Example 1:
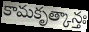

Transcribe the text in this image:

కామకృత్కాన్తః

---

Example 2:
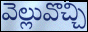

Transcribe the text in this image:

వెల్లువొచ్చి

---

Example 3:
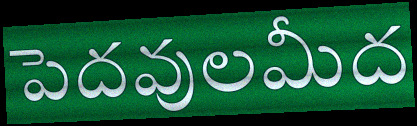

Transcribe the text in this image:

పెదవులమీద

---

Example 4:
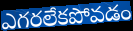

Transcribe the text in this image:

ఎగరలేకపోవడం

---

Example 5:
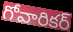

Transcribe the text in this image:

గోవారికర్